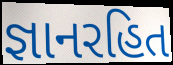
જ્ઞાનરહિત